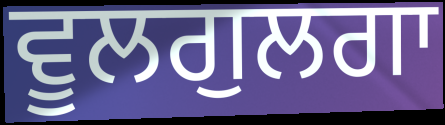
ਵੂਲਗੁਲਗਾ